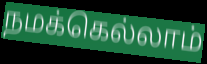
நமக்கெல்லாம்